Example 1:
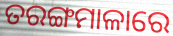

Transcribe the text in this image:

ତରଙ୍ଗମାଳାରେ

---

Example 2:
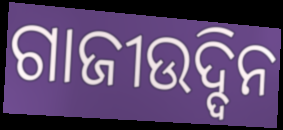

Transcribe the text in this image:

ଗାଜୀଉଦ୍ଦିନ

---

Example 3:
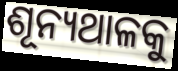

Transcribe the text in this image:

ଶୂନ୍ୟଥାଳକୁ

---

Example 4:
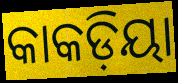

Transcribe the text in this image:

କାକଡ଼ିୟା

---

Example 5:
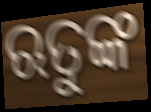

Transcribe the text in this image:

ଋତୁଙ୍କ